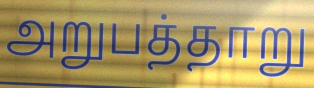
அறுபத்தாறு